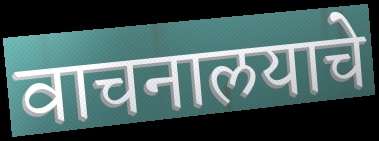
वाचनालयाचे